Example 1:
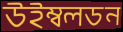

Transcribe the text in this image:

উইম্বলডন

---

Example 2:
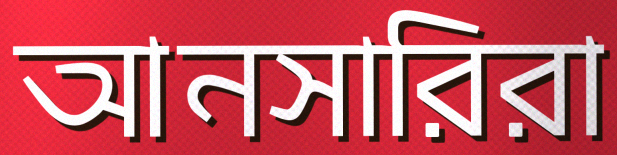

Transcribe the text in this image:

আনসারিরা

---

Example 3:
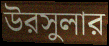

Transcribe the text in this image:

উরসুলার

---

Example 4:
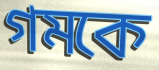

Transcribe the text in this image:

গমকে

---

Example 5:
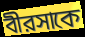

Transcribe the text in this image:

বীরসাকে